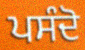
ਪਸੰਦੋ